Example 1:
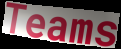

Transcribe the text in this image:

Teams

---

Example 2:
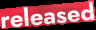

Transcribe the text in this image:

released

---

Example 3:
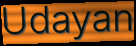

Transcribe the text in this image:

Udayan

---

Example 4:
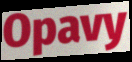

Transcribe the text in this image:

Opavy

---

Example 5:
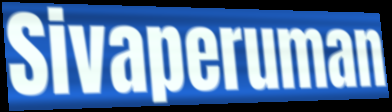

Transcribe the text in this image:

Sivaperuman